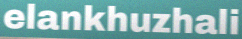
elankhuzhali